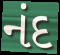
નંદ